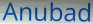
Anubad